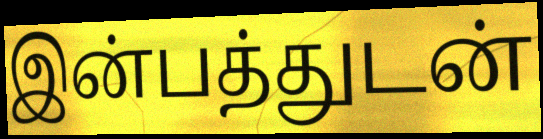
இன்பத்துடன்